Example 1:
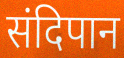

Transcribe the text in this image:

संदिपान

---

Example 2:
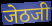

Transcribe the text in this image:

जेठजी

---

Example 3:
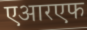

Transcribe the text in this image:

एआरएफ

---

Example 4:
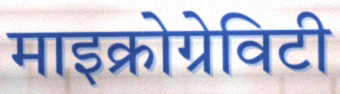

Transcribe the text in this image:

माइक्रोग्रेविटी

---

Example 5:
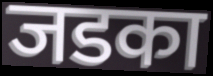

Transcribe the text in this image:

जडका